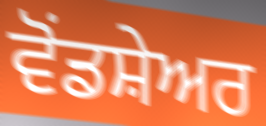
ਵੋਂਡਸ਼ੇਅਰ